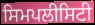
ਸਿਮਪਲੀਸਿਟੀ